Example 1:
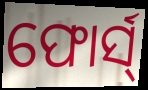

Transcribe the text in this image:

ଫୋର୍ସ୍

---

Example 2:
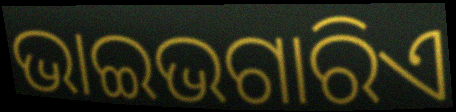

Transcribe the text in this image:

ଭାଇଭଗାରିଏ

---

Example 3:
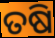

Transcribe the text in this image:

ତଷି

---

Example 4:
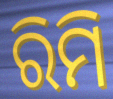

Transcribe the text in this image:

ରିମି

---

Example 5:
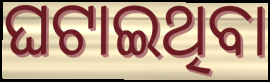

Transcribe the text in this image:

ଘଟାଇଥିବା